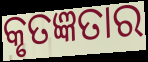
କୃତଜ୍ଞତାର